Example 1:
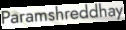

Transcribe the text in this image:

Paramshreddhay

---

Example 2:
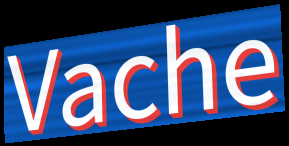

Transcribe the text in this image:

Vache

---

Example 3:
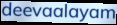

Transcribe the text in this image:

deevaalayam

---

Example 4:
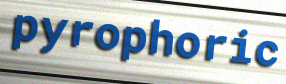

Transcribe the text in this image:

pyrophoric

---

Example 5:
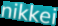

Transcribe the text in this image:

nikkei